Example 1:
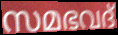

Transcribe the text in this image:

സമഭവദ്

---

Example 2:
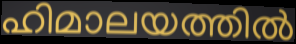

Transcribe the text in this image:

ഹിമാലയത്തിൽ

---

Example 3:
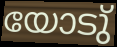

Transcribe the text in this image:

യോടു്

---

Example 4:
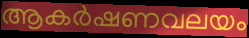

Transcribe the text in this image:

ആകർഷണവലയം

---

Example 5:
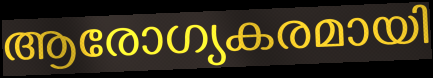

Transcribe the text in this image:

ആരോഗ്യകരമായി